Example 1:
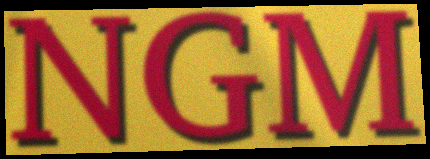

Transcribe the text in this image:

NGM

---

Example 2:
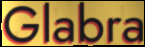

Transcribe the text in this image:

Glabra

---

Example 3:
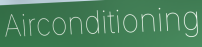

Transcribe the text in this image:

Airconditioning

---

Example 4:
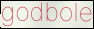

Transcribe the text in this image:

godbole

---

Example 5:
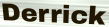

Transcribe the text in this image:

Derrick